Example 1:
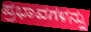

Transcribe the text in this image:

ಪ್ರಭಾವಗಳನ್ನು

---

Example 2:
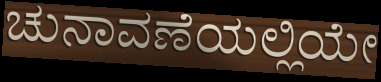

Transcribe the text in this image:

ಚುನಾವಣೆಯಲ್ಲಿಯೇ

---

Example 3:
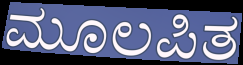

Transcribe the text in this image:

ಮೂಲಪಿತ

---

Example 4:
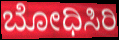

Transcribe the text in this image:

ಬೋಧಿಸಿರಿ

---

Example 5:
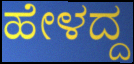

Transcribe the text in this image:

ಹೇಳದ್ದ